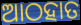
ଆଠହାତ